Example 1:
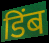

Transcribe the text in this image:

डिंब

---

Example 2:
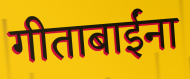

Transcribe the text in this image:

गीताबाईंना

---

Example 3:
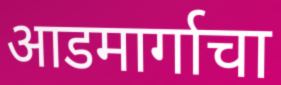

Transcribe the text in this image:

आडमार्गाचा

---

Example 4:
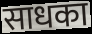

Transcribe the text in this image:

साधका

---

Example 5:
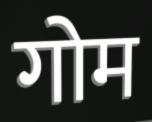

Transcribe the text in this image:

गोम